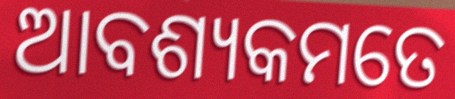
ଆବଶ୍ୟକମତେ